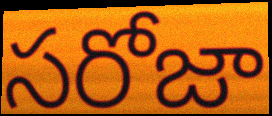
సరోజా